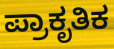
ಪ್ರಾಕೃತಿಕ